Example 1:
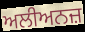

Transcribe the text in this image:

ਅਲੀਅਨਜ਼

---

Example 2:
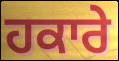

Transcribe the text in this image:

ਹਕਾਰੇ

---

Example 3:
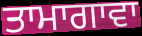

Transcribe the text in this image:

ਤਾਮਾਗਾਵਾ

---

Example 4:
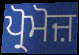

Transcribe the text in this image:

ਪ੍ਰੋਮੋਜ਼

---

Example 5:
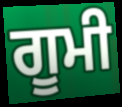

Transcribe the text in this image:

ਗੂਮੀ